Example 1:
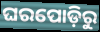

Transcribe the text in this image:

ଘରପୋଡ଼ିରୁ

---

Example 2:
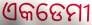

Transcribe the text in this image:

ଏକଡେମୀ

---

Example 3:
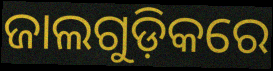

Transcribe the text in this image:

ଜାଲଗୁଡ଼ିକରେ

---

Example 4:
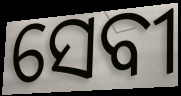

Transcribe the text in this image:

ସେବୀ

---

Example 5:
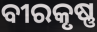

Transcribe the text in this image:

ବୀରକୃଷ୍ଣ